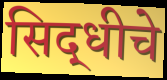
सिद्धीचे